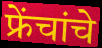
फ्रेंचांचे